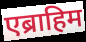
एब्राहिम